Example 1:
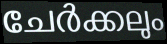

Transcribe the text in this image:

ചേർക്കലും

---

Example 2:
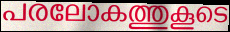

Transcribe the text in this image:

പരലോകത്തുകൂടെ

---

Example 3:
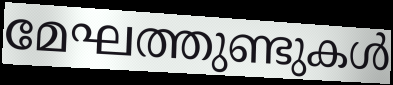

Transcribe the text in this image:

മേഘത്തുണ്ടുകൾ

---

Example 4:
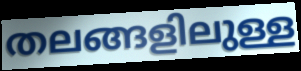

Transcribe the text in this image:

തലങ്ങളിലുള്ള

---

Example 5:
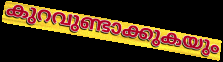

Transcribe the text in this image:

കുറവുണ്ടാക്കുകയും